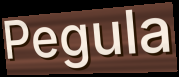
Pegula